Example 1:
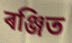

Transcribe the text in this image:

ৰঞ্জিত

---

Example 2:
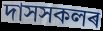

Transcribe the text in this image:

দাসসকলৰ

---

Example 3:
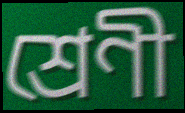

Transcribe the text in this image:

শ্ৰেণী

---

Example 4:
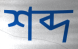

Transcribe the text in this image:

শব্দ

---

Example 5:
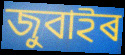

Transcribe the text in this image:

জুবাইৰ